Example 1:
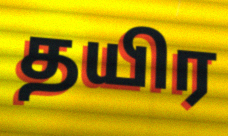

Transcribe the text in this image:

தயிர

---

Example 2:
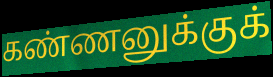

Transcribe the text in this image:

கண்ணனுக்குக்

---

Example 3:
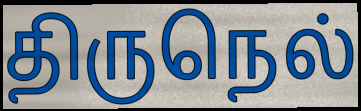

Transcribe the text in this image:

திருநெல்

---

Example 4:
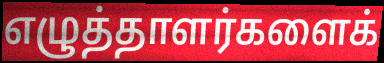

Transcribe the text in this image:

எழுத்தாளர்களைக்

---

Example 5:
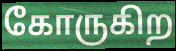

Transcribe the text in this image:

கோருகிற